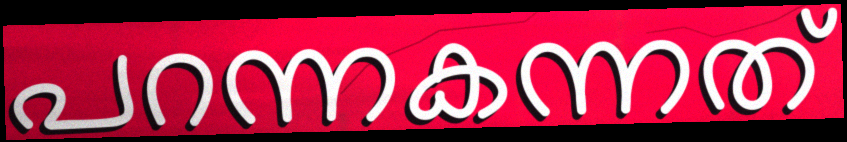
പറന്നകന്നത്